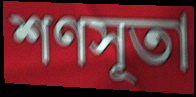
শণসূতা